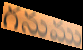
గనుము